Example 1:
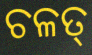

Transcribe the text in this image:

ଚଳତ୍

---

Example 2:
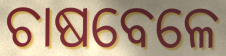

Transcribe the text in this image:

ଚାଷବେଳେ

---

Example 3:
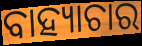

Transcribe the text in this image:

ବାହ୍ୟାଚାର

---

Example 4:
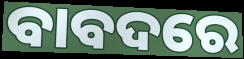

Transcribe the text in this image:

ବାବଦରେ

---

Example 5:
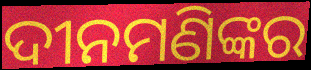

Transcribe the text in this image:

ଦୀନମଣିଙ୍କର